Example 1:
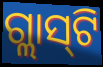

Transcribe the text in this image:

ଗ୍ଲାସ୍‍ଟି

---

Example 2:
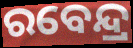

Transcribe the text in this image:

ରବେନ୍ଦ୍ର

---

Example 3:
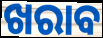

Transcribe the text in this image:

ଖରାବ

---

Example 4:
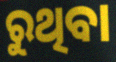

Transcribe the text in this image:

ରୁଥିବା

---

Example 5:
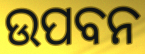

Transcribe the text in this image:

ଉପବନ